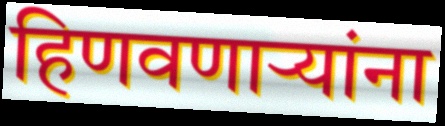
हिणवणाऱ्यांना